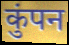
कुंपन